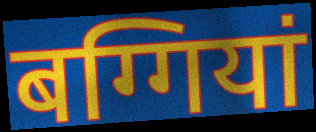
बग्गियां